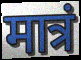
मात्रं